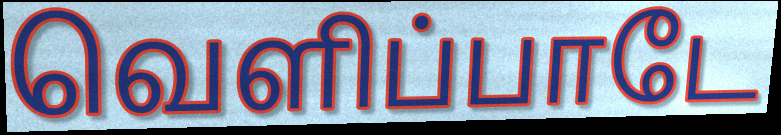
வெளிப்பாடே